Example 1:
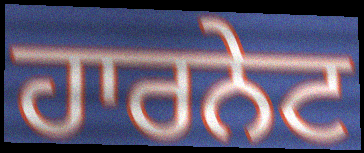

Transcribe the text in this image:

ਹਾਰਨੇਟ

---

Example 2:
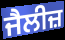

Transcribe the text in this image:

ਜੈਲੀਜ਼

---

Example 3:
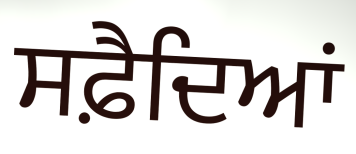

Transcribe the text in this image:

ਸਫ਼ੈਦਿਆਂ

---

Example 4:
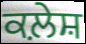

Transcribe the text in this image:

ਕਲ਼ੇਸ਼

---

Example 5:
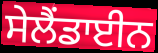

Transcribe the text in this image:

ਸੇਲੈਂਡਾਈਨ